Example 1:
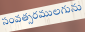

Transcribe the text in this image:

సంవత్సరములగును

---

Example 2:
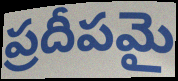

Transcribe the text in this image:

ప్రదీపమై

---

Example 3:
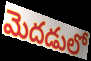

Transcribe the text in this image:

మెదడులో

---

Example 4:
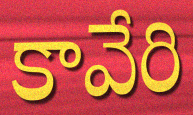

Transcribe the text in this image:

కావేరి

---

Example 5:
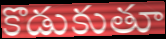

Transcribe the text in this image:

కొడుకుతూ